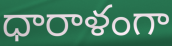
ధారాళంగా